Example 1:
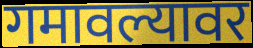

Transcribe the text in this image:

गमावल्यावर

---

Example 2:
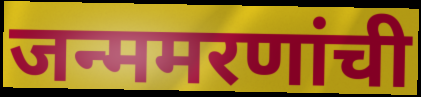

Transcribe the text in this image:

जन्ममरणांची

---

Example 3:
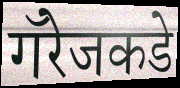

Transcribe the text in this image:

गॅरेजकडे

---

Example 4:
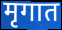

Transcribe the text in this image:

मृगात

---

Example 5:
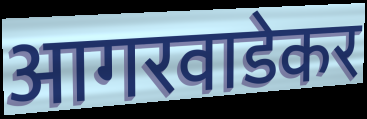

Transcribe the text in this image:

आगरवाडेकर